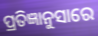
ପ୍ରତିଜ୍ଞାନୁସାରେ